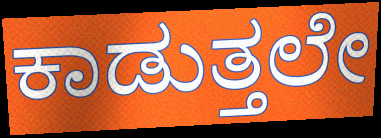
ಕಾಡುತ್ತಲೇ